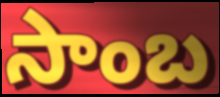
సాంబ